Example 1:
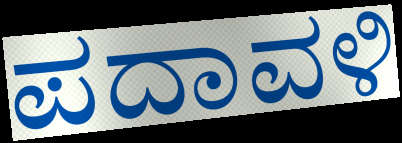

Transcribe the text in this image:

ಪದಾವಳಿ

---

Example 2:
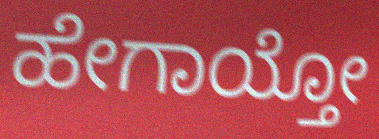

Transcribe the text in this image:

ಹೇಗಾಯ್ತೋ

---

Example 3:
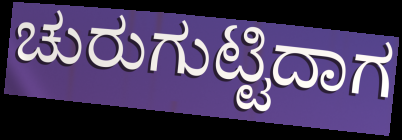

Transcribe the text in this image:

ಚುರುಗುಟ್ಟಿದಾಗ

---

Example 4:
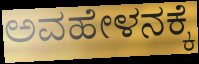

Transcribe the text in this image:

ಅವಹೇಳನಕ್ಕೆ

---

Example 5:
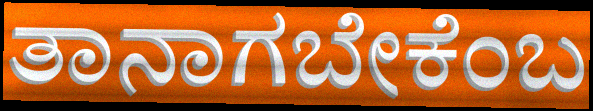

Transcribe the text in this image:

ತಾನಾಗಬೇಕೆಂಬ